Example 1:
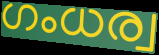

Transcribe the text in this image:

ഗംധര്വ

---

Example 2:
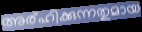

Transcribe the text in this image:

അര്ഹിക്കുന്നതുമായ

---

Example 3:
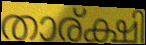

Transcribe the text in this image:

താര്ക്ഷി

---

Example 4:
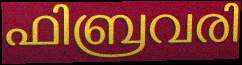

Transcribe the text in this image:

ഫിബ്രവരി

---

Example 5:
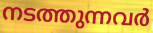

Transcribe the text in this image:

നടത്തുന്നവർ